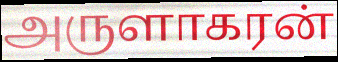
அருளாகரன்